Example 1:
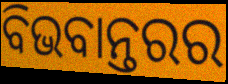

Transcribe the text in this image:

ବିଭବାନ୍ତରର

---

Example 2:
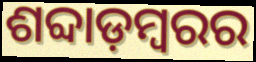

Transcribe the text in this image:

ଶବ୍ଦାଡ଼ମ୍ବରର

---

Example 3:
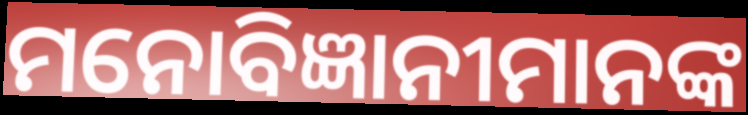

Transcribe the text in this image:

ମନୋବିଜ୍ଞାନୀମାନଙ୍କ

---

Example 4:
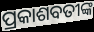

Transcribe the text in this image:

ପ୍ରକାଶବତୀଙ୍କ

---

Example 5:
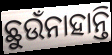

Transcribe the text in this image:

ଛୁଉଁନାହାନ୍ତି